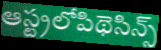
ఆస్ట్రలోపిథెసిన్స్